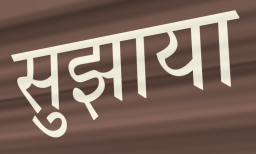
सुझाया